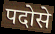
पदोसे